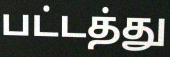
பட்டத்து